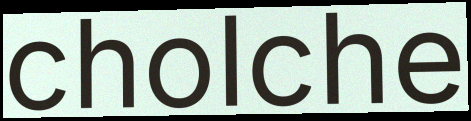
cholche